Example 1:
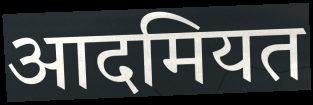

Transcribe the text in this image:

आदमियत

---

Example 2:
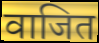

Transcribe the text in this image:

वाजित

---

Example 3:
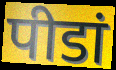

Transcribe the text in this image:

पीडां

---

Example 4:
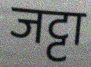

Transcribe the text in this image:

जट्टा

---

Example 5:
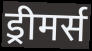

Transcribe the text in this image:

ड्रीमर्स